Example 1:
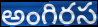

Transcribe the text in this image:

అంగిరస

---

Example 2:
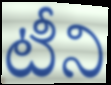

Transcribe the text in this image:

టీని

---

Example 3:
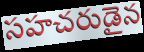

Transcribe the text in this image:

సహచరుడైన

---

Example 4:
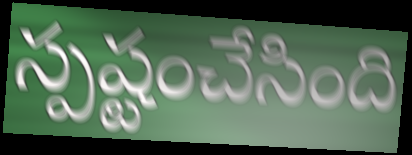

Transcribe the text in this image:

స్పష్టంచేసింది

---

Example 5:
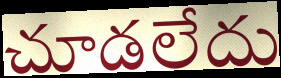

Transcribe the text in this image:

చూడలేదు